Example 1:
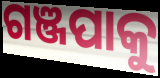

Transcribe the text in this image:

ଗଞ୍ଜପାକୁ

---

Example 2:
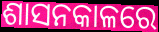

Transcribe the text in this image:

ଶାସନକାଳରେ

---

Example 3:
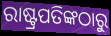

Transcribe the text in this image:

ରାଷ୍ଟ୍ରପତିଙ୍କଠାରୁ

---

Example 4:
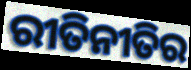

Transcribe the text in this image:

ରୀତିନୀତିର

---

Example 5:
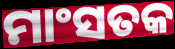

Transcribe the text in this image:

ମାଂସତକ